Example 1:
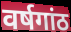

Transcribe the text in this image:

वर्षगांठ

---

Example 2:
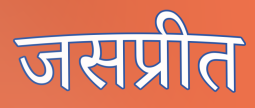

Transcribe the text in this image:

जसप्रीत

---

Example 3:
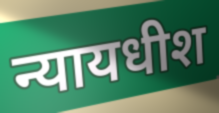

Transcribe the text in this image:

न्यायधीश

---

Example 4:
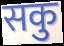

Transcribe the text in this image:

सकु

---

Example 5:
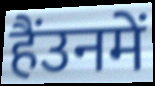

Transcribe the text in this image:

हैंउनमें